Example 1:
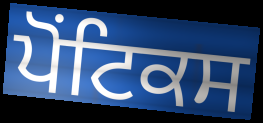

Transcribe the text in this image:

ਪੋਂਟਿਕਸ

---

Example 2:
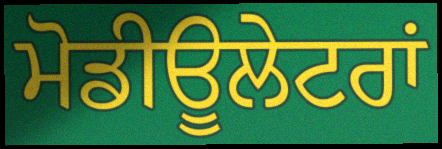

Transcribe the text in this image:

ਮੋਡੀਊਲੇਟਰਾਂ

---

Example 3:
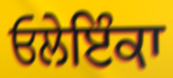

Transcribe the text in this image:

ਓਲੇਇੰਕਾ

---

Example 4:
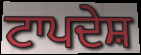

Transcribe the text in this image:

ਟਾਪਦੇਸ਼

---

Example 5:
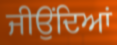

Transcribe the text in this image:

ਜੀਉਂਦਿਆਂ